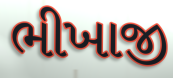
ભીખાજી